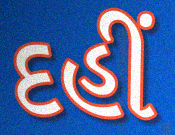
દહીં